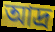
আদ্র